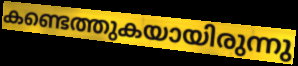
കണ്ടെത്തുകയായിരുന്നു